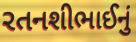
રતનશીભાઈનું